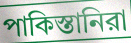
পাকিস্তানিরা